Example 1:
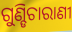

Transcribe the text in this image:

ଗୁଣ୍ଡିଚାରାଣୀ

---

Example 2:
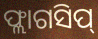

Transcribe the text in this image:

ଫ୍ଲାଗସିପ୍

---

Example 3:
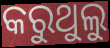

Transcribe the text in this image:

କରୁଥୁଲୁ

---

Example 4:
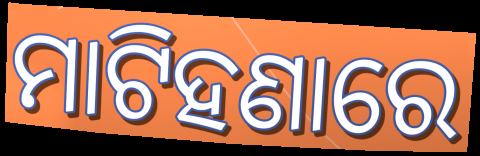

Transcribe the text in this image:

ମାଟିହଣାରେ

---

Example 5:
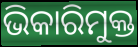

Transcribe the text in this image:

ଭିକାରିମୁକ୍ତ